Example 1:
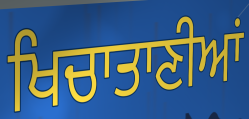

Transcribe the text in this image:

ਖਿਚਾਤਾਣੀਆਂ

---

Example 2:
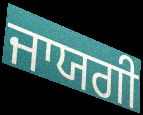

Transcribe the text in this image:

ਜਾਯਗੀ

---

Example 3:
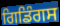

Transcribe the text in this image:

ਗਿਡਿੰਗਸ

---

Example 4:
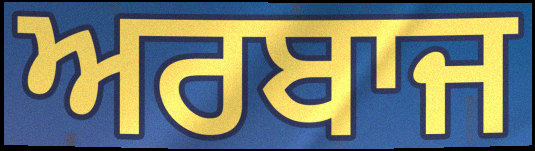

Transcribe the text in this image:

ਅਰਬਾਜ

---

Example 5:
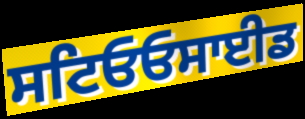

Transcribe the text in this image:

ਸਟਿਓਓਸਾਈਡ